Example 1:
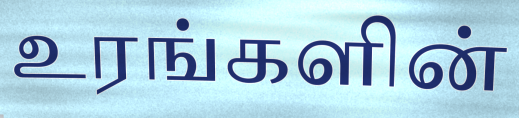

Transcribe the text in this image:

உரங்களின்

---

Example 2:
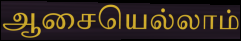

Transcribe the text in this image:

ஆசையெல்லாம்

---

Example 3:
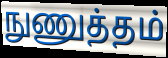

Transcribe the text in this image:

நுணுத்தம்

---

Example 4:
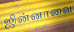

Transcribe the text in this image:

ஜின்னாவை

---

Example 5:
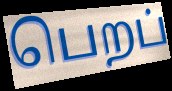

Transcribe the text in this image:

பெறப்